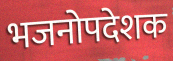
भजनोपदेशक